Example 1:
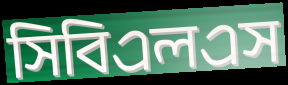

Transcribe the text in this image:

সিবিএলএস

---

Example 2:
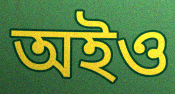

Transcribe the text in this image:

অইও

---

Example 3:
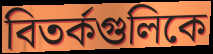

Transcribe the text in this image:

বিতর্কগুলিকে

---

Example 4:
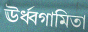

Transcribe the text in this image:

ঊর্ধ্বগামিতা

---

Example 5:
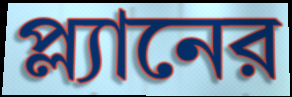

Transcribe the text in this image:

প্ল্যানের